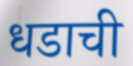
धडाची